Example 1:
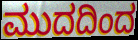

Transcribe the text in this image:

ಮುದದಿಂದ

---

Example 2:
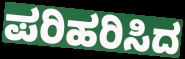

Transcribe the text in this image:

ಪರಿಹರಿಸಿದ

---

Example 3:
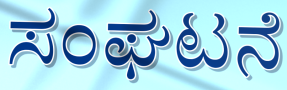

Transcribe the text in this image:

ಸಂಘಟನೆ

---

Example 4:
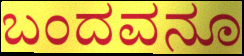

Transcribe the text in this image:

ಬಂದವನೂ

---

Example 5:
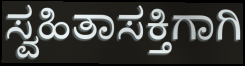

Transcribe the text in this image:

ಸ್ವಹಿತಾಸಕ್ತಿಗಾಗಿ